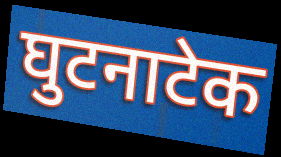
घुटनाटेक